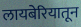
लायबेरियातून